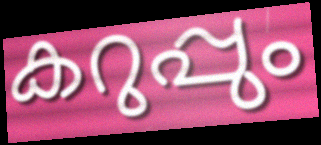
കറുപ്പും